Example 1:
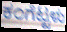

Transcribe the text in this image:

ಕಂಗೆಟ್ಟಳು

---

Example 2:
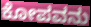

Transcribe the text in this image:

ಕೋಪವನು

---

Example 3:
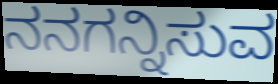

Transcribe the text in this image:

ನನಗನ್ನಿಸುವ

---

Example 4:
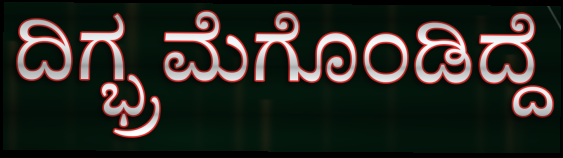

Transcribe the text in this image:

ದಿಗ್ಭ್ರಮೆಗೊಂಡಿದ್ದೆ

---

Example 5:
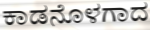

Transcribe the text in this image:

ಕಾಡನೊಳಗಾದ